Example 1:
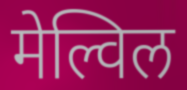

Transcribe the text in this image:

मेल्विल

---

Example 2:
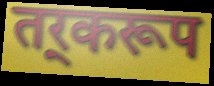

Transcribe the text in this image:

तर्करूप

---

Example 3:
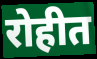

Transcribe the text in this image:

रोहीत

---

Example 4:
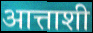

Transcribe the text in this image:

आत्ताशी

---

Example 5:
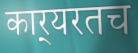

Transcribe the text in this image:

कार्यरतच